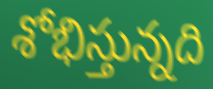
శోభిస్తున్నది